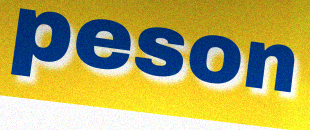
peson